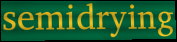
semidrying